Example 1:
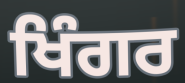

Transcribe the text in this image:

ਖਿੰਗਰ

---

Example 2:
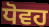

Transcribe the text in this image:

ਧੋਵਹ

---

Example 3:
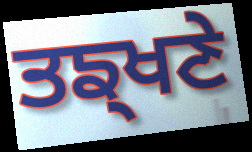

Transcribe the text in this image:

ਤਙ੍ਖਣੇ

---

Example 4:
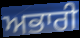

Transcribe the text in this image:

ਅਭਾਰੀ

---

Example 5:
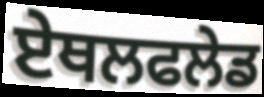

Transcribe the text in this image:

ਏਥਲਫਲੇਡ